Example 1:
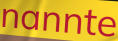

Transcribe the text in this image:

nannte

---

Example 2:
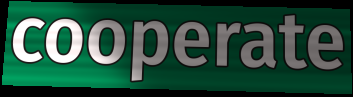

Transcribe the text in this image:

cooperate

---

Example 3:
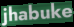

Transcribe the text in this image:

jhabuke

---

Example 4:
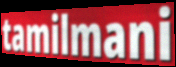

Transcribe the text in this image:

tamilmani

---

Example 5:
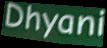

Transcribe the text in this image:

Dhyani